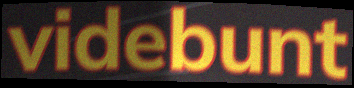
videbunt